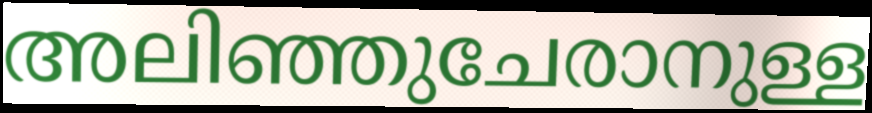
അലിഞ്ഞുചേരാനുള്ള